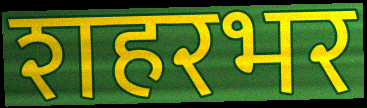
शहरभर